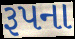
રૂપના